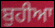
ਬੁਹੀਆ